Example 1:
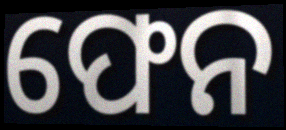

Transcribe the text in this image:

ଫେନ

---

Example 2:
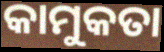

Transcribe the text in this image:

କାମୁକତା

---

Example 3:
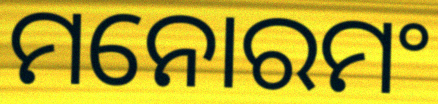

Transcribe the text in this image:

ମନୋରମଂ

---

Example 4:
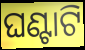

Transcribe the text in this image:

ଘଣ୍ଟାଟି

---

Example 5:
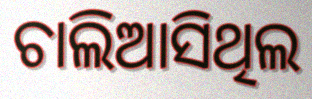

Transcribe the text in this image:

ଚାଲିଆସିଥିଲ